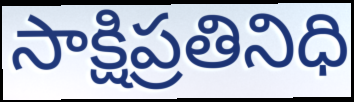
సాక్షిప్రతినిధి